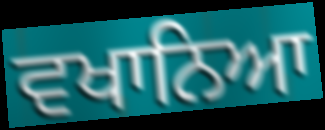
ਵਖਾਨਿਆ